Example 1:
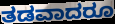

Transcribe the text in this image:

ತಡವಾದರೂ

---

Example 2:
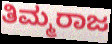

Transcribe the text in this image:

ತಿಮ್ಮರಾಜ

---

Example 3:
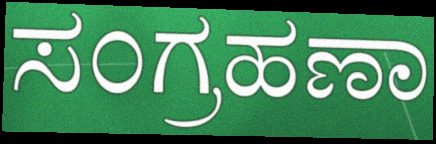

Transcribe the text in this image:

ಸಂಗ್ರಹಣಾ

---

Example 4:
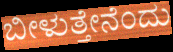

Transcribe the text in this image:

ಬೀಳುತ್ತೇನೆಂದು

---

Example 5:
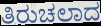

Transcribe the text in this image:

ತಿರುಚಲಾದ